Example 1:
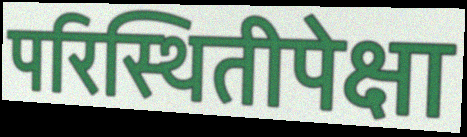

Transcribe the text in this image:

परिस्थितीपेक्षा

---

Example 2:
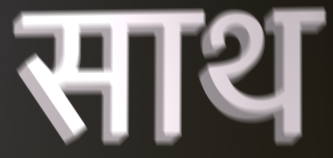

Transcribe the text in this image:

साथ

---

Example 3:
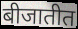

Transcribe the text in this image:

बीजातीत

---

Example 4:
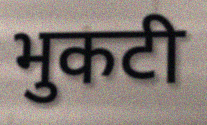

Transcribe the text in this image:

भुकटी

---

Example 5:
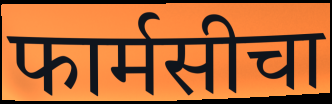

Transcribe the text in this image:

फार्मसीचा